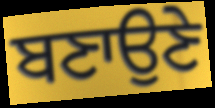
ਬਣਾਉਣੇ